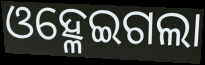
ଓହ୍ଳେଇଗଲା